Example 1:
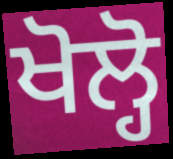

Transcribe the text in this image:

ਖੋਲ੍ਹੋ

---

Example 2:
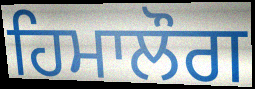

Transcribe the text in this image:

ਹਿਮਾਲੌਗ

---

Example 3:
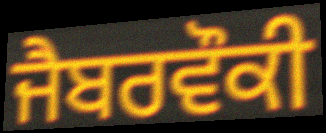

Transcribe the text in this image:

ਜੈਬਰਵੌਕੀ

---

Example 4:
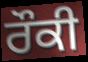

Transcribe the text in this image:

ਰੌਕੀ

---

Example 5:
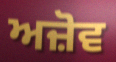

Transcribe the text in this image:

ਅਜ਼ੋਵ